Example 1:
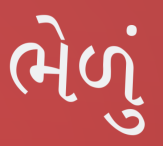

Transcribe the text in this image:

ભેળું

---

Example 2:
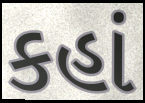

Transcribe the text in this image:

કહાં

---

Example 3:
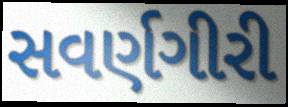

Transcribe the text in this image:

સવર્ણગીરી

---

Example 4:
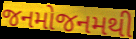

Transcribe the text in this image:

જનમોજનમથી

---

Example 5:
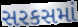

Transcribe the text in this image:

સરકસમાં